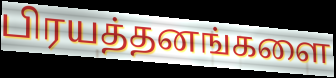
பிரயத்தனங்களை